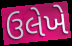
ઉલેખે